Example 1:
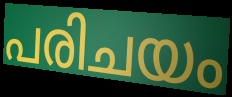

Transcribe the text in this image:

പരിചയം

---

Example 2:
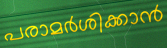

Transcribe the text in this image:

പരാമർശിക്കാൻ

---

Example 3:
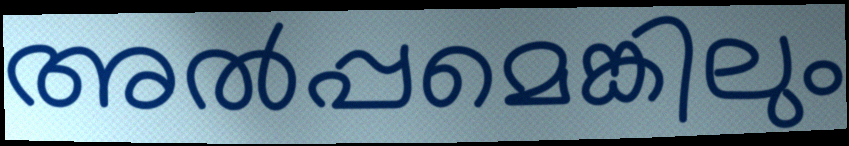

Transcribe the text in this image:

അൽപ്പമെങ്കിലും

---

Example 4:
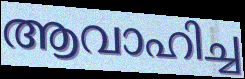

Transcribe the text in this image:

ആവാഹിച്ച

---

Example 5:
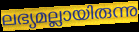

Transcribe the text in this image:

ലഭ്യമല്ലായിരുന്നു